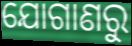
ଯୋଗାଣରୁ